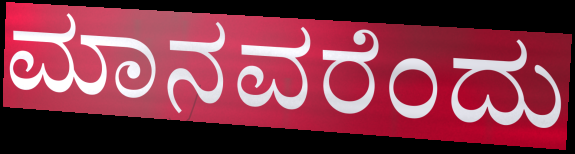
ಮಾನವರೆಂದು